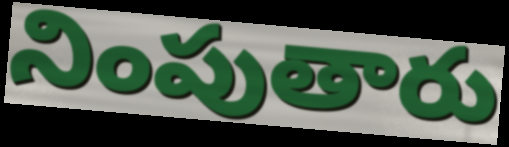
నింపుతారు